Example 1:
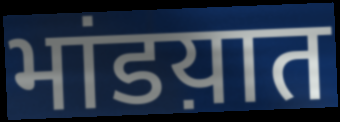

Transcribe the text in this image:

भांडय़ात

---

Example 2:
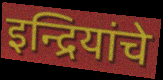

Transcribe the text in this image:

इन्द्रियांचे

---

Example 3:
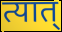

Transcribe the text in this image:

त्यात्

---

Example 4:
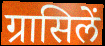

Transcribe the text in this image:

ग्रासिलें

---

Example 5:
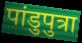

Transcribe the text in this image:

पांडुपुत्रा